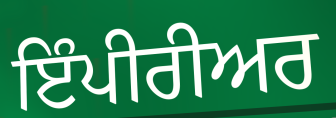
ਇੰਪੀਰੀਅਰ